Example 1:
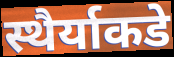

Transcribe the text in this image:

स्थैर्याकडे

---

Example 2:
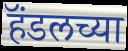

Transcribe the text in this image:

हॅंडलच्या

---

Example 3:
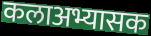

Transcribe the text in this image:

कलाअभ्यासक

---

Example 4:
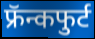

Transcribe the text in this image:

फ्रॅन्कफुर्ट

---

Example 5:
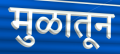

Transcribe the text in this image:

मुळातून